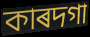
কাৰদগা